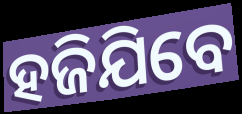
ହଜିଯିବେ